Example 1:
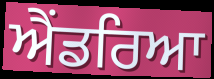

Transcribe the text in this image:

ਐਂਡਰਿਆ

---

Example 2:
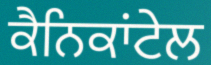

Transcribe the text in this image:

ਕੈਨਿਕਾਂਟੇਲ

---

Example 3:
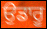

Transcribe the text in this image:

ਉਡਾਰੂ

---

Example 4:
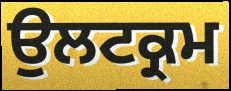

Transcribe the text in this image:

ਉਲਟਕ੍ਰਮ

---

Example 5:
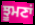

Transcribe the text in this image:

ਝੂਮਣਾਂ